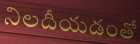
నిలదీయడంతో